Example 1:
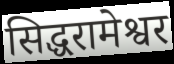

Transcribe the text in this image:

सिद्धरामेश्वर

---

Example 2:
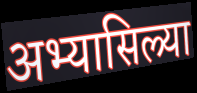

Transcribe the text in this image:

अभ्यासिल्या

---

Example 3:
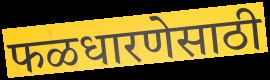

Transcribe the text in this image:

फळधारणेसाठी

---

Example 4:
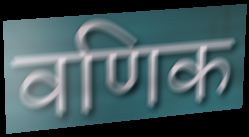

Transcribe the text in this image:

वणिक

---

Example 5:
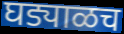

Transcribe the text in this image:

घड्याळच